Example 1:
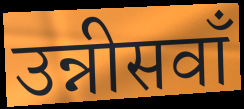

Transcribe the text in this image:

उन्नीसवाँ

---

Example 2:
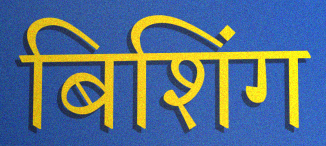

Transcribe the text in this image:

बिशिंग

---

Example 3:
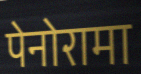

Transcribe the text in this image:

पेनोरामा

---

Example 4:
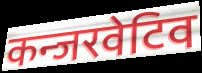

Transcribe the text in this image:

कन्जरवेटिव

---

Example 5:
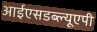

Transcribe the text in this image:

आईएसडब्ल्यूएपी